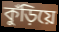
কুঁড়িয়ে